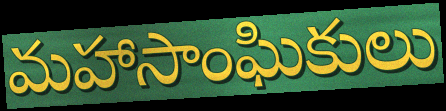
మహాసాంఘికులు